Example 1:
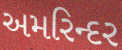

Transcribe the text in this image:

અમરિન્દર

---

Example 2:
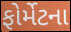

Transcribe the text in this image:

ફોર્મેટના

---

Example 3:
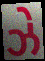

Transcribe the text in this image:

ઝે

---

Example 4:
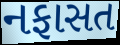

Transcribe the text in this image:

નફાસત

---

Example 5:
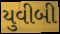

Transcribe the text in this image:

યુવીબી